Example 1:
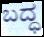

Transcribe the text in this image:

ಬದ್ಧ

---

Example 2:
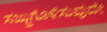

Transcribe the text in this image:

ಸಜ್ಜುಗೊಳಿಸುವುದೇ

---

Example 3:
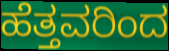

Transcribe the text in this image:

ಹೆತ್ತವರಿಂದ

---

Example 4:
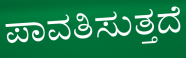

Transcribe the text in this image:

ಪಾವತಿಸುತ್ತದೆ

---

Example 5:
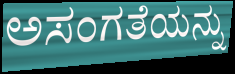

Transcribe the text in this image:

ಅಸಂಗತೆಯನ್ನು